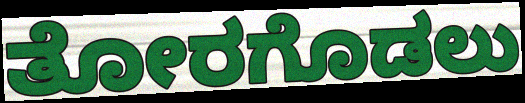
ತೋರಗೊಡಲು